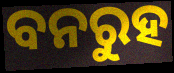
ବନରୁହ